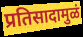
प्रतिसादामुळं